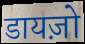
डायज़ो